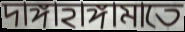
দাঙ্গাহাঙ্গামাতে